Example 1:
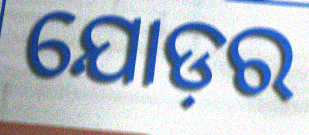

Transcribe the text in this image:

ଯୋଡ଼ର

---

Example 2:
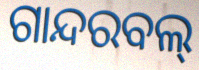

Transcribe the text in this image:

ଗାନ୍ଦରବଲ୍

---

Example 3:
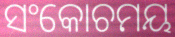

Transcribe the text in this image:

ସଂକୋଚମୟ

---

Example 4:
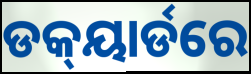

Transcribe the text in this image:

ଡକ୍‍ୟାର୍ଡରେ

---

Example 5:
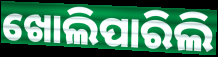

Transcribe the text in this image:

ଖୋଲିପାରିଲି